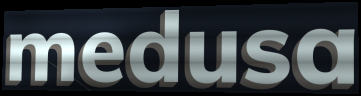
medusa